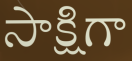
సాక్షిగా